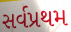
સર્વપ્રથમ